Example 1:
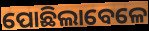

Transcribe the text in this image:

ପୋଛିଲାବେଳେ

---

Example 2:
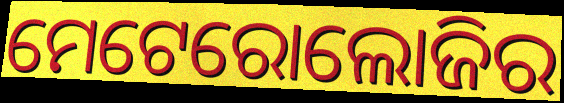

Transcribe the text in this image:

ମେଟେରୋଲୋଜିର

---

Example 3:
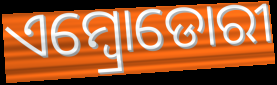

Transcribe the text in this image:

ଏମ୍ବ୍ରୋଡୋରୀ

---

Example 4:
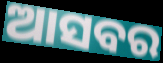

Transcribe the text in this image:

ଆସବର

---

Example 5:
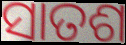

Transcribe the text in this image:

ସାତଶ